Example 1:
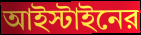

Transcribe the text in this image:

আইস্টাইনের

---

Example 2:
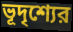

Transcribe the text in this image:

ভূদৃশ্যের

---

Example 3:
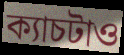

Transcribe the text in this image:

ক্যাচটাও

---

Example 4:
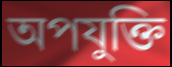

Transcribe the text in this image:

অপযুক্তি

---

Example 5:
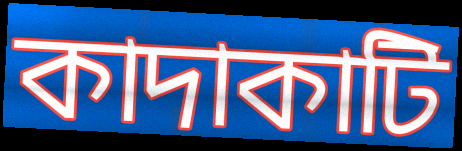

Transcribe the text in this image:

কাদাকাটি